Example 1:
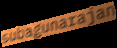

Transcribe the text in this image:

subagunarajan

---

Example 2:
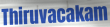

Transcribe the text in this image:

Thiruvacakam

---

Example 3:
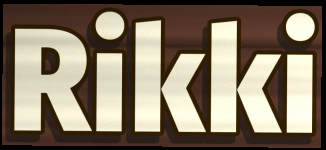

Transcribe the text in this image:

Rikki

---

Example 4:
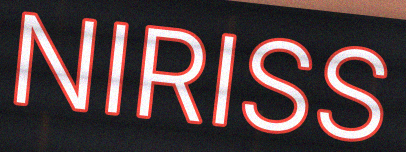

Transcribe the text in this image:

NIRISS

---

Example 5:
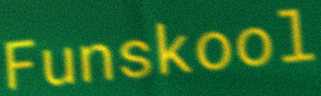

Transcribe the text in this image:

Funskool